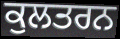
ਕੁਲਤਰਨ